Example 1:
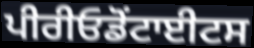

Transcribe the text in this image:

ਪੀਰੀਓਡੋਂਟਾਈਟਸ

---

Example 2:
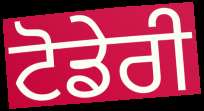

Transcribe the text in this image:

ਟੋਡੇਰੀ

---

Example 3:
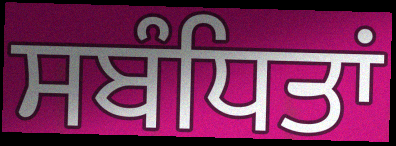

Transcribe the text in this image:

ਸਬੰਧਿਤਾਂ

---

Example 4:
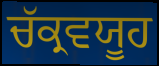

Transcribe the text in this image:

ਚੱਕ੍ਰਵਯੂਹ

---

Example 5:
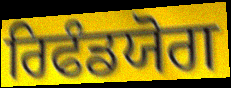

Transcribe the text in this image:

ਰਿਫੰਡਯੋਗ